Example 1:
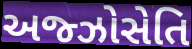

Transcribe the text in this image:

અજ્ઝોસેતિ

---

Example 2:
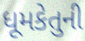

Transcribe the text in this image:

ધૂમકેતુની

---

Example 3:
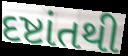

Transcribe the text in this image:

દષ્ટાંતથી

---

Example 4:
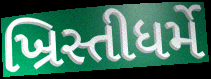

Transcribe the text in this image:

ખ્રિસ્તીધર્મે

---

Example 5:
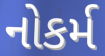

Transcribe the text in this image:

નોકર્મ